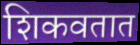
शिकवतात